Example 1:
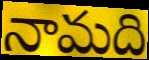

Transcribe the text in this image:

నామది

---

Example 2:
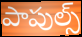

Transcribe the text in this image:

పాపుల్స్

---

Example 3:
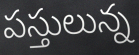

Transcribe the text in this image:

పస్తులున్న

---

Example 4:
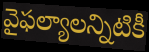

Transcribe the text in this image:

వైఫల్యాలన్నిటికీ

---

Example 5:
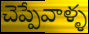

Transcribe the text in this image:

చెప్పేవాళ్ళ